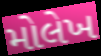
મોલેખ